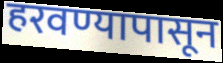
हरवण्यापासून